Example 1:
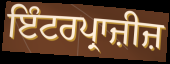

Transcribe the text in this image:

ਇੰਟਰਪ੍ਰਾਜ਼ੀਜ਼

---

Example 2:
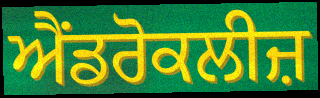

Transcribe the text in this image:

ਐਂਡਰੋਕਲੀਜ਼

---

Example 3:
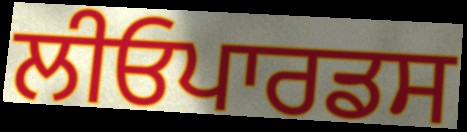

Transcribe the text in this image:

ਲੀਓਪਾਰਡਸ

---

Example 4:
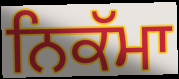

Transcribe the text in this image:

ਨਿਕੱਮਾ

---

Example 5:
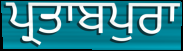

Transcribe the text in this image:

ਪ੍ਰਤਾਬਪੁਰਾ